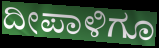
ದೀಪಾಳಿಗೂ